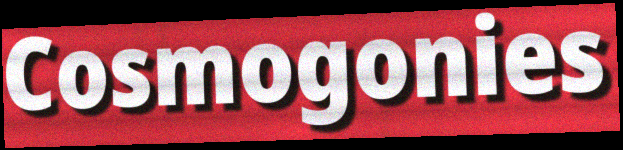
Cosmogonies